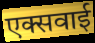
एक्सवाई